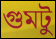
গুমটু